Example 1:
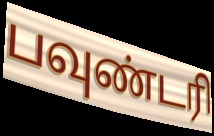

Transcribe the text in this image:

பவுண்டரி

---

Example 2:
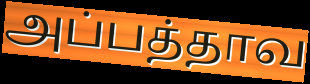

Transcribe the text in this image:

அப்பத்தாவ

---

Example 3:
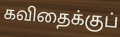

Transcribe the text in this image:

கவிதைக்குப்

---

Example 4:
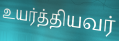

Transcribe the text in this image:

உயர்த்தியவர்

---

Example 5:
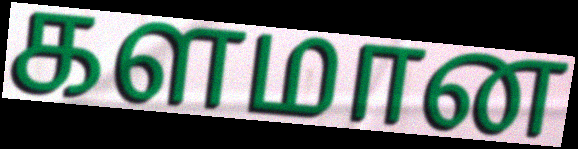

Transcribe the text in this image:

களமான